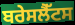
ਬਰੇਸਲੈੱਟਸ